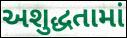
અશુદ્ધતામાં